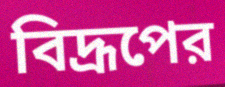
বিদ্রূপের